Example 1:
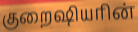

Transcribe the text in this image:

குறைஷியரின்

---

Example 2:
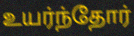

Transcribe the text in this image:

உயர்ந்தோர்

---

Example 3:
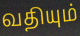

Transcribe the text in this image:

வதியும்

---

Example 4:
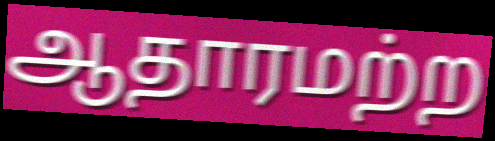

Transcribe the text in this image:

ஆதாரமற்ற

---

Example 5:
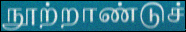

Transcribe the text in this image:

நூற்றாண்டுச்